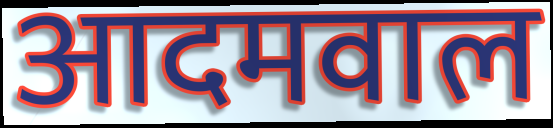
आदमवाल